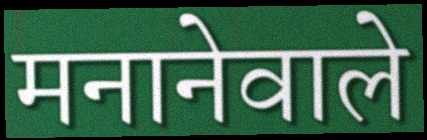
मनानेवाले